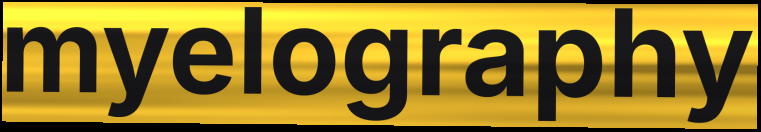
myelography